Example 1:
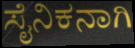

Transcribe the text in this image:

ಸೈನಿಕನಾಗಿ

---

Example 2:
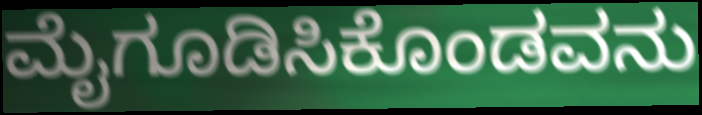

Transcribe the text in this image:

ಮೈಗೂಡಿಸಿಕೊಂಡವನು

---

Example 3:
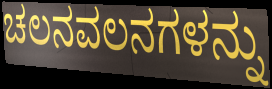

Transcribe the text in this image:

ಚಲನವಲನಗಳನ್ನು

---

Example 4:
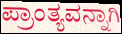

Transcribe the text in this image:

ಪ್ರಾಂತ್ಯವನ್ನಾಗಿ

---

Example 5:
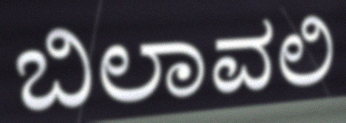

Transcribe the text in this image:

ಬಿಲಾವಲಿ